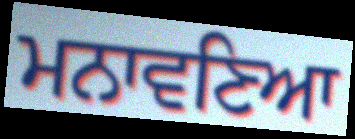
ਮਨਾਵਣਿਆ